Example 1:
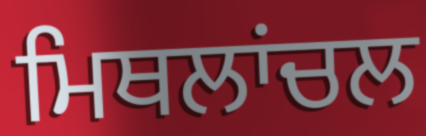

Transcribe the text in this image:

ਮਿਥਲਾਂਚਲ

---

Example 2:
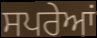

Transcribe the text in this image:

ਸਪਰੇਆਂ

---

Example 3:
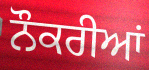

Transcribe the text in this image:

ਨੌਕਰੀਆਂ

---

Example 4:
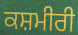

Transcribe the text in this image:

ਕਸ਼ਮੀਰੀ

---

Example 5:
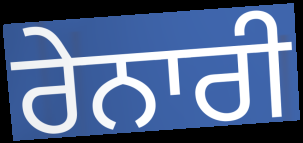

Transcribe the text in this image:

ਰੇਨਾਰੀ